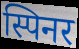
स्पिनर